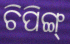
ଚିପିଙ୍ଗ୍